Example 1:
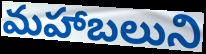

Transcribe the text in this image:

మహాబలుని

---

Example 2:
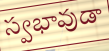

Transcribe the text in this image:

స్వభావుడా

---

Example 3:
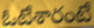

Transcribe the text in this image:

ఓటేశారంటే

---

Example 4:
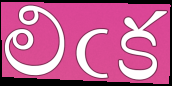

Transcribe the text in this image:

లిఁక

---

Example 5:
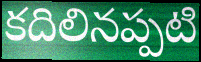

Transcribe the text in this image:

కదిలినప్పటి